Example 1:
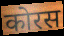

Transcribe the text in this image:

कोरस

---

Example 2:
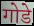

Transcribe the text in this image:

गोडे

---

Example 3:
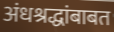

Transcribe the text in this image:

अंधश्रद्धांबाबत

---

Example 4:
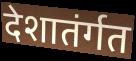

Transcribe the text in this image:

देशातंर्गत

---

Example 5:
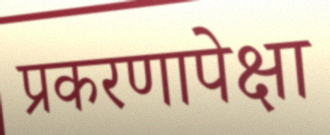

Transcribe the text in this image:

प्रकरणापेक्षा